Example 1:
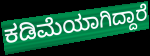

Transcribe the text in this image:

ಕಡಿಮೆಯಾಗಿದ್ದಾರೆ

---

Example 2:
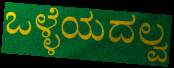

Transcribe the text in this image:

ಒಳ್ಳೆಯದಲ್ವ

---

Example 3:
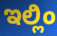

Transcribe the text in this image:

ಇಲ್ಲಿಂ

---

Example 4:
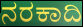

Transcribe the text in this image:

ನರಕಾದಿ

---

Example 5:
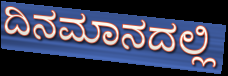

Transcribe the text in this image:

ದಿನಮಾನದಲ್ಲಿ